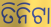
ତିନିଟା